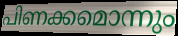
പിണക്കമൊന്നും